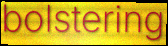
bolstering